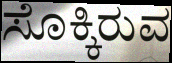
ಸೊಕ್ಕಿರುವ